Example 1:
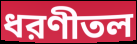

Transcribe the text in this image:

ধরণীতল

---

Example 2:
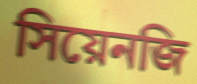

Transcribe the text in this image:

সিয়েনজি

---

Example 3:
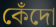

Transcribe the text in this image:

কেঁদো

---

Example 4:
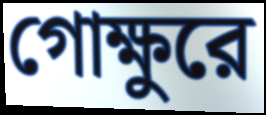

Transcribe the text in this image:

গোক্ষুরে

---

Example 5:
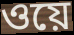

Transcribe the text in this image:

ওয়ে